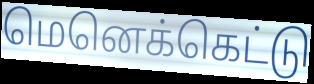
மெனெக்கெட்டு